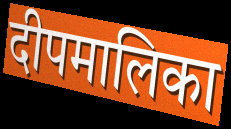
दीपमालिका